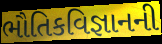
ભૌતિકવિજ્ઞાનની